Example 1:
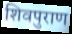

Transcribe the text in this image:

शिवपुराण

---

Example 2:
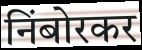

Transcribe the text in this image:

निंबोरकर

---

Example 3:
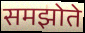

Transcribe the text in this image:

समझोते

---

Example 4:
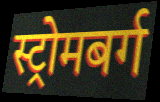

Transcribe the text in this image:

स्ट्रोमबर्ग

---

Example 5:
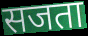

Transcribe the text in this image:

सजता